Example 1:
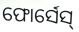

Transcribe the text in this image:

ଫୋର୍ସେସ୍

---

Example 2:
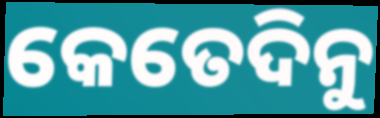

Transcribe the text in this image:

କେତେଦିନୁ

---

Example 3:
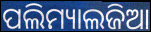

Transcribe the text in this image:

ପଲିମ୍ୟାଲଜିଆ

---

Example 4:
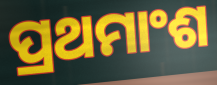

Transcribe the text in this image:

ପ୍ରଥମାଂଶ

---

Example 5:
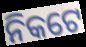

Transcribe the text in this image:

ନିକଟେ